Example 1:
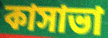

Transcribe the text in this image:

কাসাভা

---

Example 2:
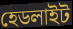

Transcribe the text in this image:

হেডলাইট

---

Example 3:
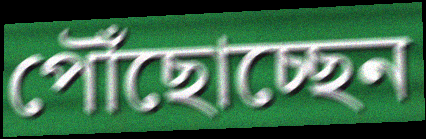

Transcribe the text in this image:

পৌঁছোচ্ছেন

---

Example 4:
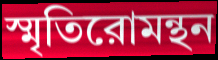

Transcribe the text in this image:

স্মৃতিরোমন্থন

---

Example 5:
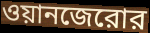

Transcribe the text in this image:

ওয়ানজেরোর